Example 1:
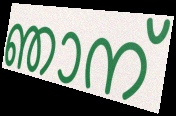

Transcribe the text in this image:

ഞാന്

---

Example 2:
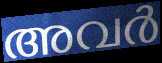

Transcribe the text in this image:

അവർ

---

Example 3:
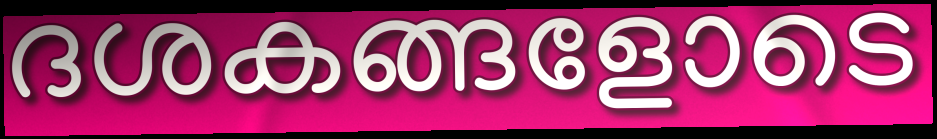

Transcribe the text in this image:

ദശകങ്ങളോടെ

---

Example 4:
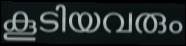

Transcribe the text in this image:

കൂടിയവരും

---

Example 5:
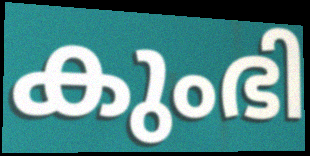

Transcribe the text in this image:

കുംഭി